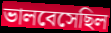
ভালবেসেছিল